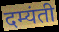
दम्यंती